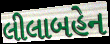
લીલાબહેન